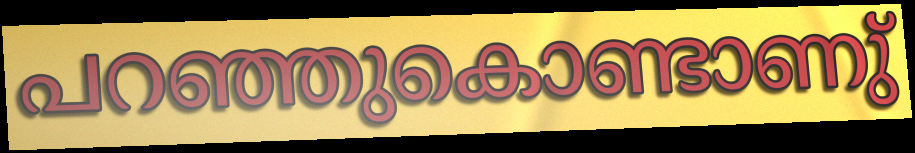
പറഞ്ഞുകൊണ്ടാണു്